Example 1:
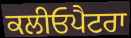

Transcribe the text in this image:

ਕਲੀਓਪੈਟਰਾ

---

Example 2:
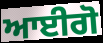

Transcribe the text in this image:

ਆਈਗੋ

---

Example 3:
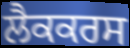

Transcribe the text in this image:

ਲੈਕਕਰਸ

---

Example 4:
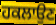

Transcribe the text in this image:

ਹਕਲਾਉਣ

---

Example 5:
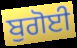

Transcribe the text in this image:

ਬੁਗੋਈ